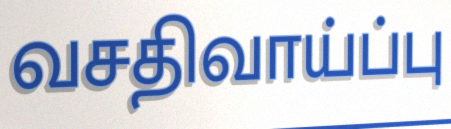
வசதிவாய்ப்பு